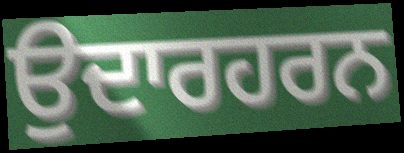
ਉਦਾਰਹਰਨ